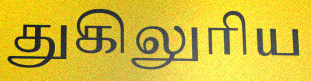
துகிலுரிய